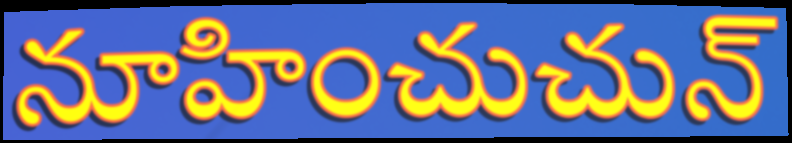
నూహించుచున్